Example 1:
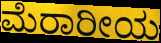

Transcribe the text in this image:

ಮೆರಾರೀಯ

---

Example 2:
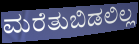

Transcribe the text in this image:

ಮರೆತುಬಿಡಲಿಲ್ಲ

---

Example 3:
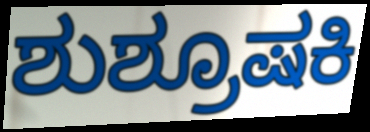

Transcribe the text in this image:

ಶುಶ್ರೂಷಕಿ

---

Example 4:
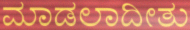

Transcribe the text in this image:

ಮಾಡಲಾದೀತು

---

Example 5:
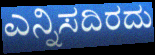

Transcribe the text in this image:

ಎನ್ನಿಸದಿರದು